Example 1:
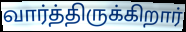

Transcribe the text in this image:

வார்த்திருக்கிறார்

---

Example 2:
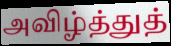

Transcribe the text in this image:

அவிழ்த்துத்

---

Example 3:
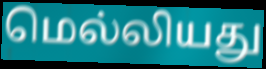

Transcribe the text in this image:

மெல்லியது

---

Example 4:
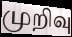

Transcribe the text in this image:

முறிவு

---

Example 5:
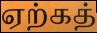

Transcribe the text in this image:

ஏற்கத்